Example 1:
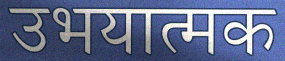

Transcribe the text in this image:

उभयात्मक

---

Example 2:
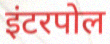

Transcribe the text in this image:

इंटरपोल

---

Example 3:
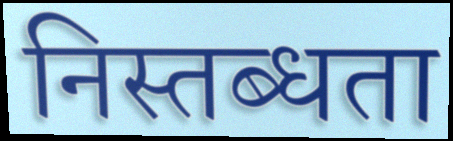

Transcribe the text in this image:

निस्तब्धता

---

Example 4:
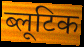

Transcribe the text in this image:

ब्लूटिक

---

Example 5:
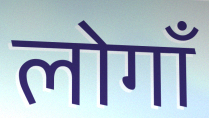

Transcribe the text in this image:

लोगाँ